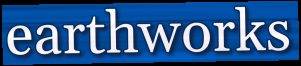
earthworks